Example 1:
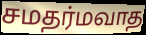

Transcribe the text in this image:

சமதர்மவாத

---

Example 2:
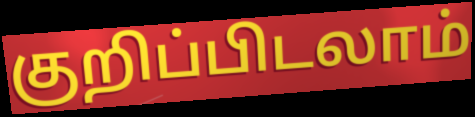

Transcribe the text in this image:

குறிப்பிடலாம்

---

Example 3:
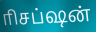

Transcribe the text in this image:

ரிசப்ஷன்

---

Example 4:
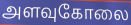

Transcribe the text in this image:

அளவுகோலை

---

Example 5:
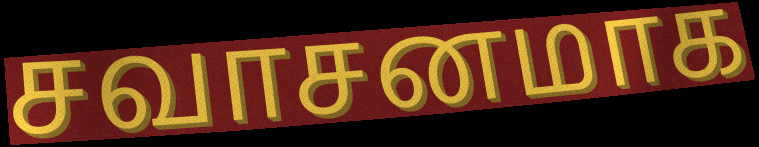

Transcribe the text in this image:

சவாசனமாக